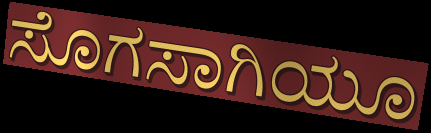
ಸೊಗಸಾಗಿಯೂ